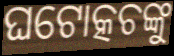
ଘଟୋତ୍କଚଙ୍କୁ